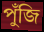
পুঁজি